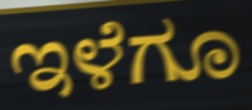
ಇಳೆಗೂ